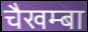
चैखम्बा